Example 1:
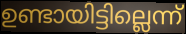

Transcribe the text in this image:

ഉണ്ടായിട്ടില്ലെന്ന്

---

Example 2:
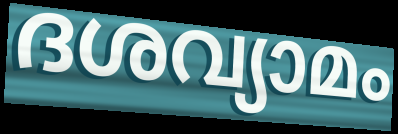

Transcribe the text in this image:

ദശവ്യാമം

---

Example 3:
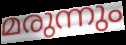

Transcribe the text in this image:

മരുന്നും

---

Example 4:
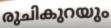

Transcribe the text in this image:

രുചികുറയും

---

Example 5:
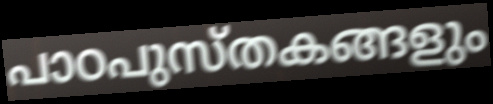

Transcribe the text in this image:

പാഠപുസ്തകങ്ങളും